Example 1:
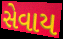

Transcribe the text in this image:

સેવાય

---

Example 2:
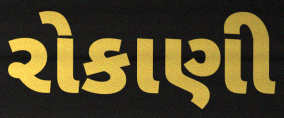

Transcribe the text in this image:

રોકાણી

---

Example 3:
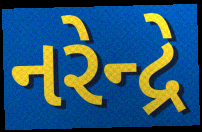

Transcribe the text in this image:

નરેન્દ્રે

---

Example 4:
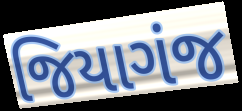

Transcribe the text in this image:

જિયાગંજ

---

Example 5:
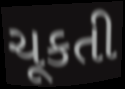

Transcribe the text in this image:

ચૂકતી